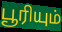
பூரியும்